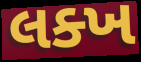
લક્ખ